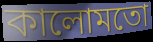
কালোমতো